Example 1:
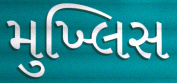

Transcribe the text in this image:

મુખ્લિસ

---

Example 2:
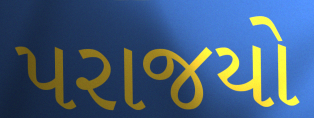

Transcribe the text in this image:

પરાજયો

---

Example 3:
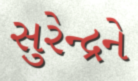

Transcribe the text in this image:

સુરેન્દ્રને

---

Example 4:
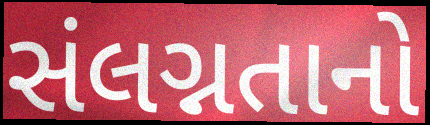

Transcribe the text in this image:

સંલગ્નતાનો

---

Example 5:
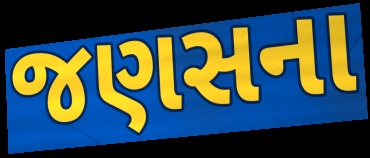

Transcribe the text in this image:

જણસના